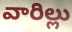
వారిల్లు